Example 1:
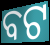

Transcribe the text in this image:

ବଟ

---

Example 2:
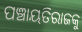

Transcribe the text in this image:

ପଞ୍ଚାୟତିରାଜକୁ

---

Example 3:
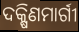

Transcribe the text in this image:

ଦକ୍ଷିଣମାର୍ଗୀ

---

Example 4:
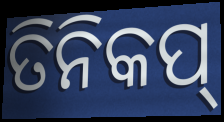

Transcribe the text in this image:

ତିନିକପ୍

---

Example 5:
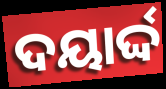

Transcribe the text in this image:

ଦୟାର୍ଦ୍ଦ